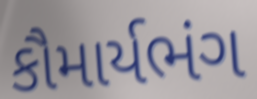
કૌમાર્યભંગ